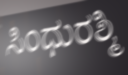
ಸಿಂಧುರಶ್ಮಿ